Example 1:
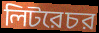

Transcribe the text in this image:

লিটরেচর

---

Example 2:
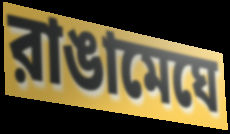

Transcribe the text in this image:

রাঙামেঘে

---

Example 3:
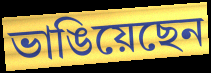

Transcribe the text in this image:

ভাঙিয়েছেন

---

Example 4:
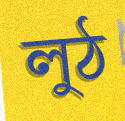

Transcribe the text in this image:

লুঠ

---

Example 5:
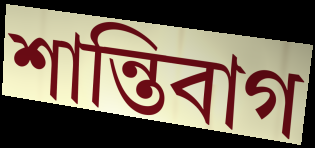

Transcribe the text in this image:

শান্তিবাগ